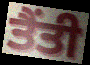
ਤੈਂਤੀ